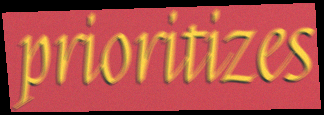
prioritizes